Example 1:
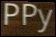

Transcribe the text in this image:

PPy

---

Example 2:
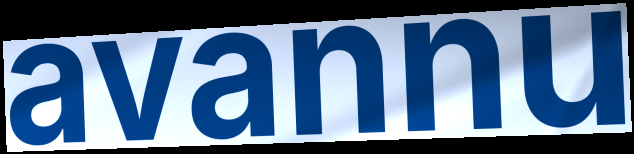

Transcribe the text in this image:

avannu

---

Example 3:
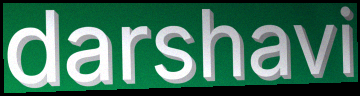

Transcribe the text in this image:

darshavi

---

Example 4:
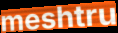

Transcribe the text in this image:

meshtru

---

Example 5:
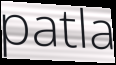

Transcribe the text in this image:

patla